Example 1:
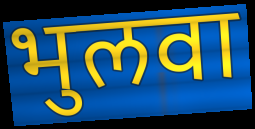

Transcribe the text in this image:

भुलवा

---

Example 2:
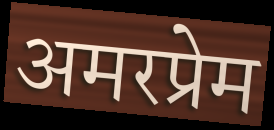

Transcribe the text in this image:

अमरप्रेम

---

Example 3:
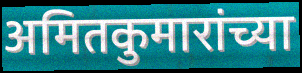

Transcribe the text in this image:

अमितकुमारांच्या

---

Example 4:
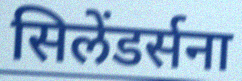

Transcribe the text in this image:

सिलेंडर्सना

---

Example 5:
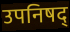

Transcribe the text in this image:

उपनिषद्